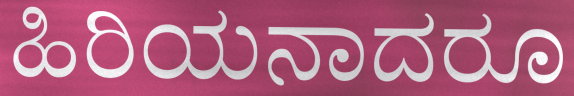
ಹಿರಿಯನಾದರೂ